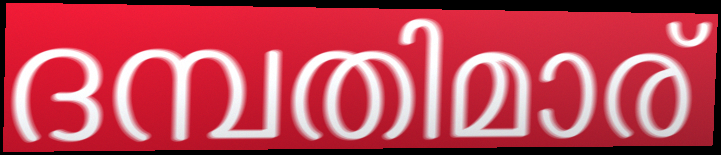
ദമ്പതിമാര്